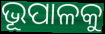
ଭୂପାଳକୁ